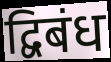
द्विबंध